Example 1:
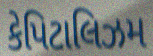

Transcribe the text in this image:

કેપિટાલિઝમ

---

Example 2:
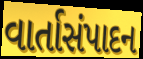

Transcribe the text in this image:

વાર્તાસંપાદન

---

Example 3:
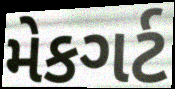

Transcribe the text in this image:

મેકગર્ટ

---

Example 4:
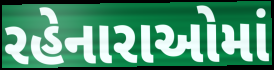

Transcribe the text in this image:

રહેનારાઓમાં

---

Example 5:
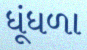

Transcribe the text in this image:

ધૂંધળા